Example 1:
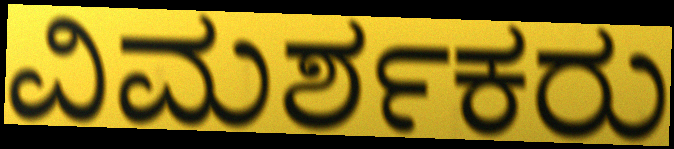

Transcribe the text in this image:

ವಿಮರ್ಶಕರು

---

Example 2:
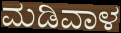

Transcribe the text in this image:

ಮಡಿವಾಳ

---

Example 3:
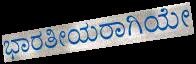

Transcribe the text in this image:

ಭಾರತೀಯರಾಗಿಯೇ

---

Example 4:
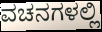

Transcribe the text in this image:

ವಚನಗಳಲ್ಲಿ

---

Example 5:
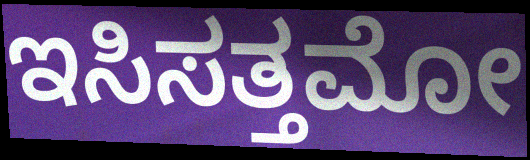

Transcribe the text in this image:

ಇಸಿಸತ್ತಮೋ